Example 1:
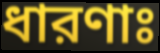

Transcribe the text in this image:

ধারণাঃ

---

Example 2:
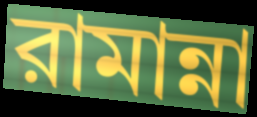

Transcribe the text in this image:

রামান্না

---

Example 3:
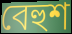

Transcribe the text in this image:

বেহুশ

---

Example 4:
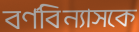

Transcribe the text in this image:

বর্ণবিন্যাসকে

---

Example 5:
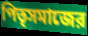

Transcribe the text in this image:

পিতৃসমাজের